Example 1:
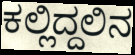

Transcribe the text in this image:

ಕಲ್ಲಿದ್ದಲಿನ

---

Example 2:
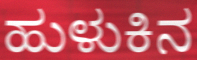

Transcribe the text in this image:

ಹುಳುಕಿನ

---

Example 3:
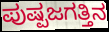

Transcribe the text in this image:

ಪುಷ್ಪಜಗತ್ತಿನ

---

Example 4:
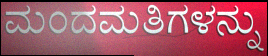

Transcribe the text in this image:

ಮಂದಮತಿಗಳನ್ನು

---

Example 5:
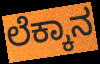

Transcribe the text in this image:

ಲೆಕ್ಕಾನ